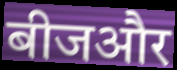
बीजऔर